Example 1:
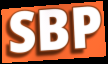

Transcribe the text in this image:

SBP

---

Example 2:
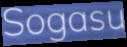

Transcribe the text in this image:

Sogasu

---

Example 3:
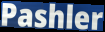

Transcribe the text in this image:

Pashler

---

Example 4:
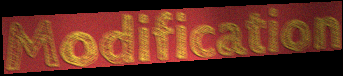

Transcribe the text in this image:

Modification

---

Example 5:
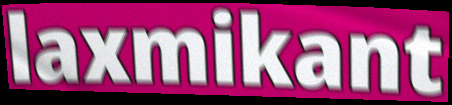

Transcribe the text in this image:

laxmikant